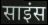
साइंस